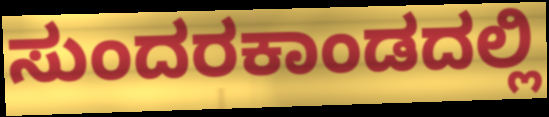
ಸುಂದರಕಾಂಡದಲ್ಲಿ